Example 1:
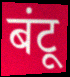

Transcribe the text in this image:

बंटू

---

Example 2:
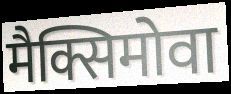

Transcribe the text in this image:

मैक्सिमोवा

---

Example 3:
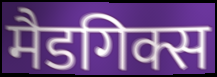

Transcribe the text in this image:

मैडगिक्स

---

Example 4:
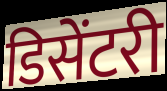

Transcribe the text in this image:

डिसेंटरी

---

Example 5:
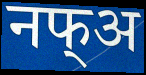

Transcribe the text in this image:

नफ्अ